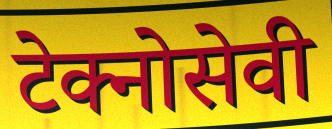
टेक्नोसेवी